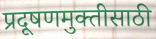
प्रदूषणमुक्तीसाठी